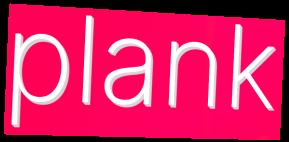
plank